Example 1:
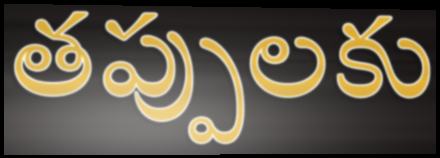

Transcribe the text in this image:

తప్పులకు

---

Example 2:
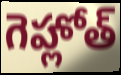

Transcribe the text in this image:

గెహ్లోత్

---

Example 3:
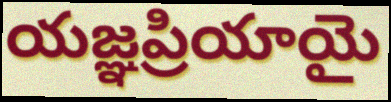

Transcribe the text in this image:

యజ్ఞప్రియాయై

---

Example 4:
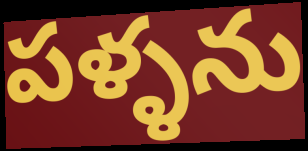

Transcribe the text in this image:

పళ్ళను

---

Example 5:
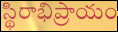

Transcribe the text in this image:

స్థిరాభిప్రాయం